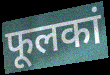
फूलकां